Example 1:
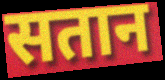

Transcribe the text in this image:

सतान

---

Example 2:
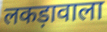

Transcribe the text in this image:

लकड़ावाला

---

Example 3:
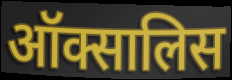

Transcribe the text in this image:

ऑक्सालिस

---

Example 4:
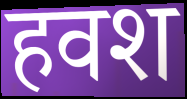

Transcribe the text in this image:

हवश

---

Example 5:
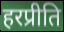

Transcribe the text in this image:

हरप्रीति